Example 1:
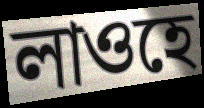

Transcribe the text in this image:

লাওহে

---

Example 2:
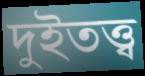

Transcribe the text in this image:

দুইতত্ত্ব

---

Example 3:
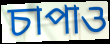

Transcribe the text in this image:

চাপাও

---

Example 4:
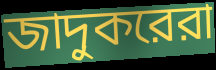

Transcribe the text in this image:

জাদুকরেরা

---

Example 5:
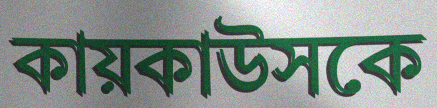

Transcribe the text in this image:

কায়কাউসকে